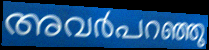
അവർപറഞ്ഞു